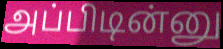
அப்பிடின்னு